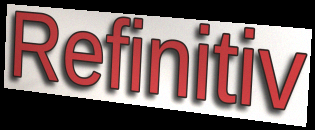
Refinitiv